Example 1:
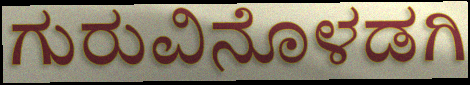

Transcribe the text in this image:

ಗುರುವಿನೊಳಡಗಿ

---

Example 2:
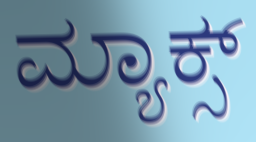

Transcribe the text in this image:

ಮ್ಯಾಕ್ಸ್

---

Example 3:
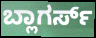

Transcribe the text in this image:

ಬ್ಲಾಗರ್ಸ್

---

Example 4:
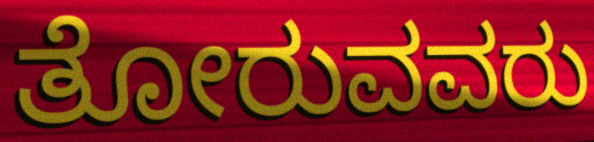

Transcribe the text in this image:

ತೋರುವವರು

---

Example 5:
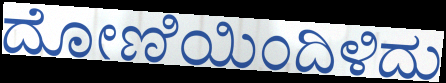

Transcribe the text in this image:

ದೋಣಿಯಿಂದಿಳಿದು